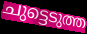
ചുട്ടെടുത്ത